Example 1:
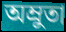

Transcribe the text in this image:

অম্রুতা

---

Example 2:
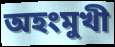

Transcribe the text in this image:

অহংমুখী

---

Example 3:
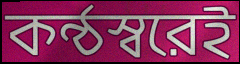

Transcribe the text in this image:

কন্ঠস্বরেই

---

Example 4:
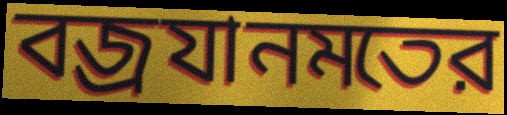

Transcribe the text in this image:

বজ্রযানমতের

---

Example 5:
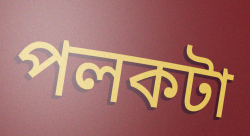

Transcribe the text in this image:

পলকটা